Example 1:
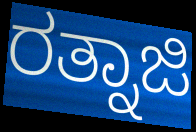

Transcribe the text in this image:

ರತ್ನಾಜಿ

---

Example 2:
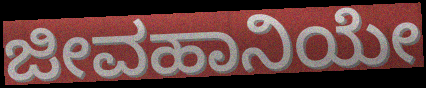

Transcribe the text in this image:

ಜೀವಹಾನಿಯೇ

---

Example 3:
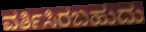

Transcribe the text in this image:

ವರ್ತಿಸಿರಬಹುದು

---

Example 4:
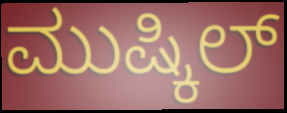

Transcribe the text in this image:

ಮುಷ್ಕಿಲ್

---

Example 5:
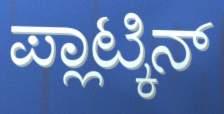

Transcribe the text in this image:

ಪ್ಲಾಟ್ಕಿನ್